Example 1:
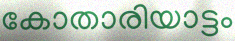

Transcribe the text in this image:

കോതാരിയാട്ടം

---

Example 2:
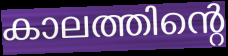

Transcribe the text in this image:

കാലത്തിന്റെ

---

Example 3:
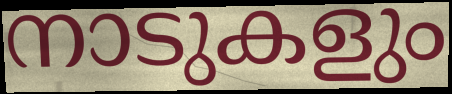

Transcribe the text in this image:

നാടുകളും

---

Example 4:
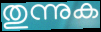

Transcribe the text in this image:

തുന്നുക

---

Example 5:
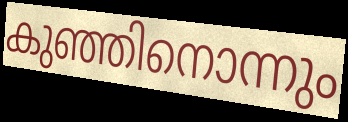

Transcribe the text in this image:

കുഞ്ഞിനൊന്നും